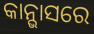
କାନ୍ଭାସରେ